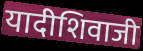
यादीशिवाजी